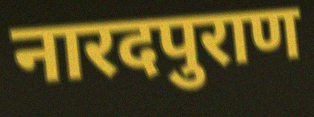
नारदपुराण